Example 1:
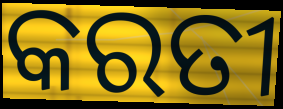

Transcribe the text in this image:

କରତୀ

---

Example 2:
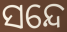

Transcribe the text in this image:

ସନ୍ଦେ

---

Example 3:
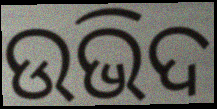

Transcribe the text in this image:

ଉଭିଦ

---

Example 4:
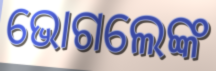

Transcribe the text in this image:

ଭୋଗଲେଙ୍କ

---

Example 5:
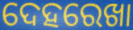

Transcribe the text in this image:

ଦେହରେଖା